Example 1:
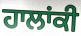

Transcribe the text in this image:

ਹਾਲਾਂਕੀ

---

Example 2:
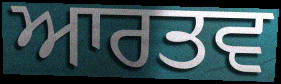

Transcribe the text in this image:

ਆਰਤਵ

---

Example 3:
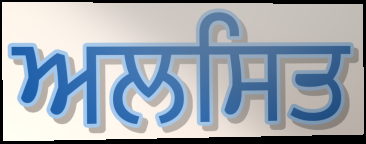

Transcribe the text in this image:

ਅਲਸਿਤ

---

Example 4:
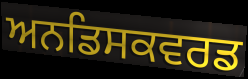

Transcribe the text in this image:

ਅਨਡਿਸਕਵਰਡ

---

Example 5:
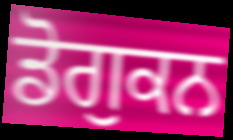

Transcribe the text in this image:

ਡੋਗੁਕਨ